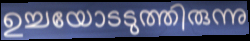
ഉച്ചയോടടുത്തിരുന്നു